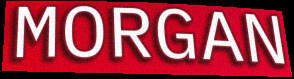
MORGAN